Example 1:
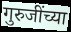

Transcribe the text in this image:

गुरुजींच्या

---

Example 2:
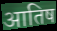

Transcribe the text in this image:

आतिष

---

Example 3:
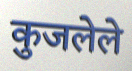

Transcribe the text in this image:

कुजलेले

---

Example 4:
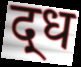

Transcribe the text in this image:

द्ध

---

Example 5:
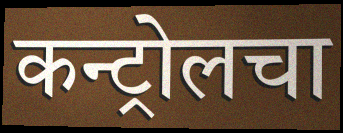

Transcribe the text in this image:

कन्ट्रोलचा